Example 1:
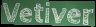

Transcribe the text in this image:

Vetiver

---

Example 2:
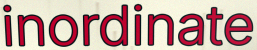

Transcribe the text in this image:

inordinate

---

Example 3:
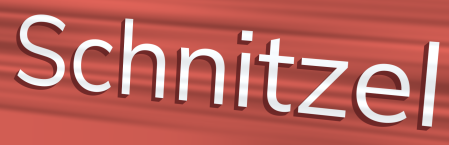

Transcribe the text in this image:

Schnitzel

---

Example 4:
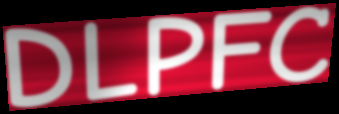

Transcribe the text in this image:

DLPFC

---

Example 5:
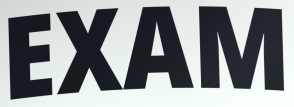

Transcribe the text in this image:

EXAM